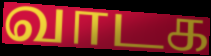
வாடக